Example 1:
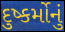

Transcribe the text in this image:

દુષ્કર્મોનું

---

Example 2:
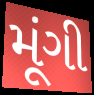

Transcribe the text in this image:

મૂંગી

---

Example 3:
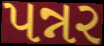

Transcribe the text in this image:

પન્નર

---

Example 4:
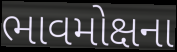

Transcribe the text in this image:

ભાવમોક્ષના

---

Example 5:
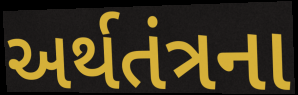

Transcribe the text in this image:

અર્થતંત્રના